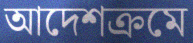
আদেশক্রমে